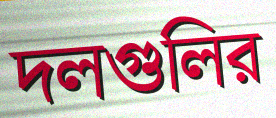
দলগুলির